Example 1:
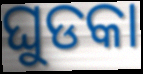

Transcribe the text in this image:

ଘୁଡକା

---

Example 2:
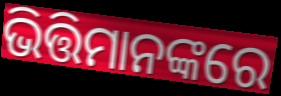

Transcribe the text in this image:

ଭିତ୍ତିମାନଙ୍କରେ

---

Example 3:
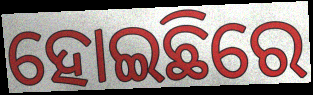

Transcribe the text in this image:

ହୋଇଛିରେ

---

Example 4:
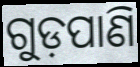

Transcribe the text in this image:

ଗୁଡ଼ପାଣି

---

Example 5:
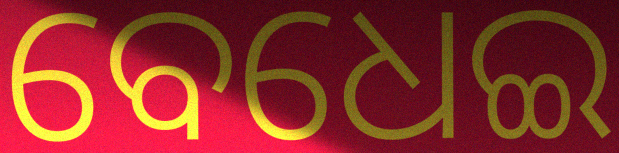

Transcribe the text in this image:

ବେଧେଇ